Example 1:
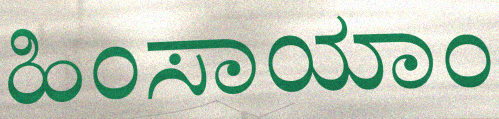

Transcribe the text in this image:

ಹಿಂಸಾಯಾಂ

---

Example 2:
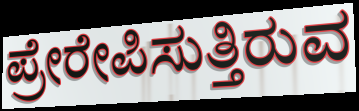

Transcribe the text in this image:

ಪ್ರೇರೇಪಿಸುತ್ತಿರುವ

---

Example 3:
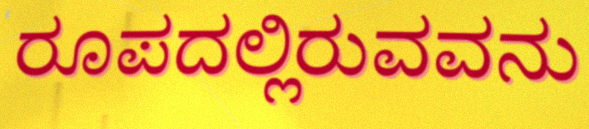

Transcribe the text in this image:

ರೂಪದಲ್ಲಿರುವವನು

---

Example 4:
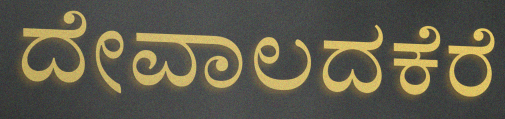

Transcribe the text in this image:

ದೇವಾಲದಕೆರೆ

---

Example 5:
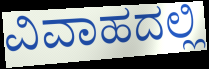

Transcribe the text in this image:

ವಿವಾಹದಲ್ಲಿ